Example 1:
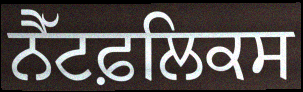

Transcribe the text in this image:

ਨੈੱਟਫ਼ਲਿਕਸ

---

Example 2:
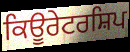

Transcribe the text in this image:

ਕਿਊਰੇਟਰਸ਼ਿਪ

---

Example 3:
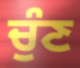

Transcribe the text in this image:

ਚੁੰਣ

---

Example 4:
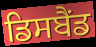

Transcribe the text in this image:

ਡਿਸਬੈਂਡ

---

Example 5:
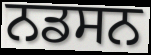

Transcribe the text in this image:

ਨਡਸਨ